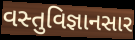
વસ્તુવિજ્ઞાનસાર